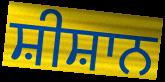
ਸ਼ੀਸ਼ਾਨ